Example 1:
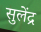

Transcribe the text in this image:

सुलेंद्र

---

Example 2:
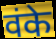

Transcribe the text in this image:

वंके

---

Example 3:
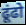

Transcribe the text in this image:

ढूंढो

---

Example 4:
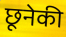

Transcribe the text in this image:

छूनेकी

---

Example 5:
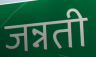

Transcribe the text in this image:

जन्नती